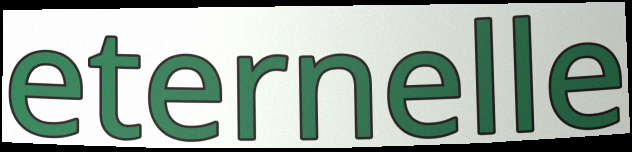
eternelle